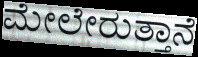
ಮೇಲೇರುತ್ತಾನೆ